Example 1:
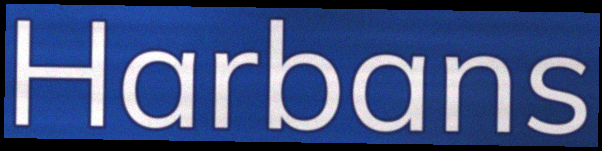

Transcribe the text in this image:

Harbans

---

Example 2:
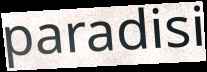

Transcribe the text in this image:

paradisi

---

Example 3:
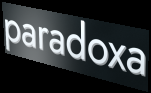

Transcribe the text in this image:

paradoxa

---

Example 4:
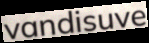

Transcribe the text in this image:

vandisuve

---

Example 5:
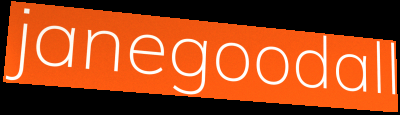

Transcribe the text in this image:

janegoodall